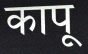
कापू